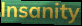
Insanity